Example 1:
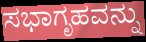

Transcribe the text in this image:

ಸಭಾಗೃಹವನ್ನು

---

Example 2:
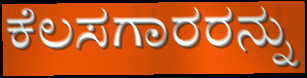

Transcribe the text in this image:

ಕೆಲಸಗಾರರನ್ನು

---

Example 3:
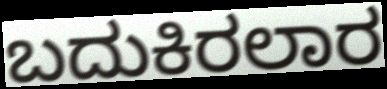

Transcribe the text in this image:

ಬದುಕಿರಲಾರ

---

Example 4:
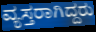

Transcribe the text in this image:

ವ್ಯಸ್ತರಾಗಿದ್ದರು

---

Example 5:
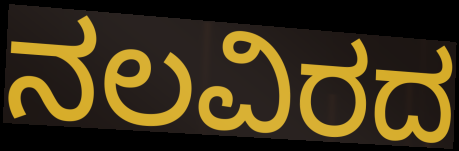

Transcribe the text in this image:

ನಲವಿರದ